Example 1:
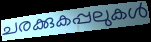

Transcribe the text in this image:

ചരക്കുകപ്പലുകൾ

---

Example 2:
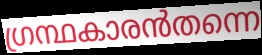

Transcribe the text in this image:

ഗ്രന്ഥകാരൻതന്നെ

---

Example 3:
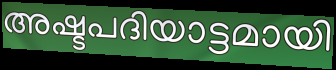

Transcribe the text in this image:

അഷ്ടപദിയാട്ടമായി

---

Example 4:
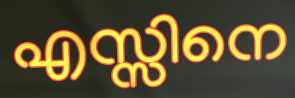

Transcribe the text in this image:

എസ്സിനെ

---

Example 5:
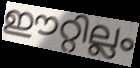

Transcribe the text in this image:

ഈറ്റില്ലം